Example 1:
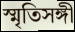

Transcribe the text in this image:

স্মৃতিসঙ্গী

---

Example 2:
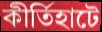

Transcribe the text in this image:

কীর্তিহাটে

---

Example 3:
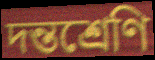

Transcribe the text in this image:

দন্তশ্রেণি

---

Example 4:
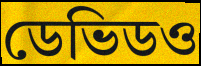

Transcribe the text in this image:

ডেভিডও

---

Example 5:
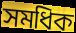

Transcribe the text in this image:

সমধিক